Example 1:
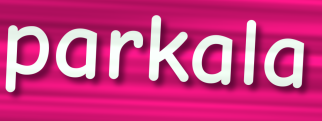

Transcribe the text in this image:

parkala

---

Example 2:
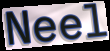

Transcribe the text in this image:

Neel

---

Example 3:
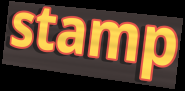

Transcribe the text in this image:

stamp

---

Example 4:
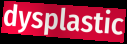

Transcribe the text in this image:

dysplastic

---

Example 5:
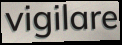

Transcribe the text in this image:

vigilare